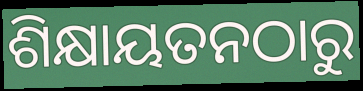
ଶିକ୍ଷାୟତନଠାରୁ